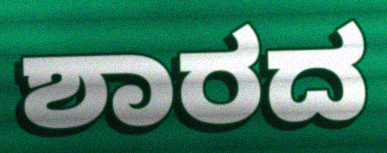
ಶಾರದ